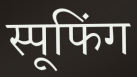
स्पूफिंग